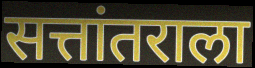
सत्तांतराला